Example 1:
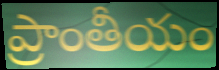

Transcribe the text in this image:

ప్రాంతీయం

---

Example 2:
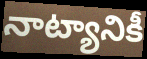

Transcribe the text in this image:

నాట్యానికీ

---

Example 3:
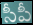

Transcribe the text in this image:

సీపీ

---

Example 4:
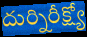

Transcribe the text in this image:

దుర్నిరీక్ష్యో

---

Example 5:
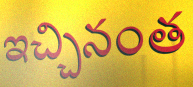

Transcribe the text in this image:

ఇచ్చినంత